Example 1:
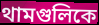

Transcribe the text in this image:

থামগুলিকে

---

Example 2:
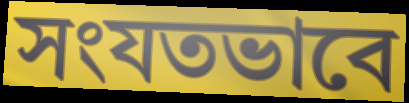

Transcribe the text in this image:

সংযতভাবে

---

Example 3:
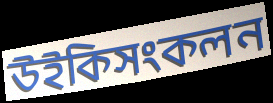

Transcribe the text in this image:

উইকিসংকলন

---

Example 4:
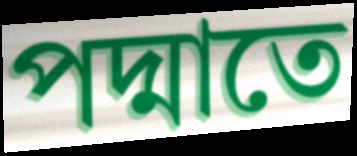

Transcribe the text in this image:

পদ্মাতে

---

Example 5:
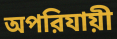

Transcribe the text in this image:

অপরিযায়ী